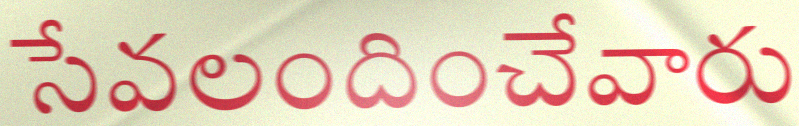
సేవలందించేవారు